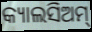
କ୍ୟାଲସିଅମ୍